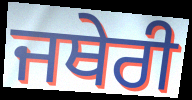
ਜਥੇਰੀ